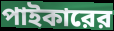
পাইকারের